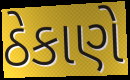
ઠેકાણે